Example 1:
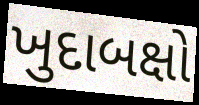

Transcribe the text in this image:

ખુદાબક્ષો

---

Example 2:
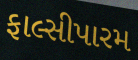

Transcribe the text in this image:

ફાલ્સીપારમ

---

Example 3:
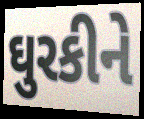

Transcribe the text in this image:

ઘુરકીને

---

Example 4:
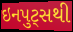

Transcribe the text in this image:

ઇનપુટ્સથી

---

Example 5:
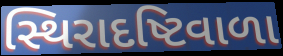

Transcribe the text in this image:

સ્થિરાદષ્ટિવાળા